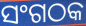
ସଂଗଠକ